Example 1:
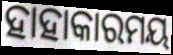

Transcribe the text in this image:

ହାହାକାରମୟ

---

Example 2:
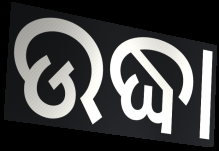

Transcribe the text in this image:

ଉଦ୍ଧା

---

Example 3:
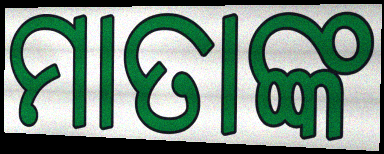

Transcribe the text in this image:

ମାତାଙ୍କ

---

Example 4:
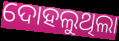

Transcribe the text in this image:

ଦୋହଲୁଥିଲା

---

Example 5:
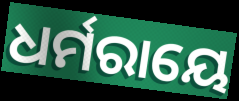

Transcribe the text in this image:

ଧର୍ମରାୟେ